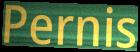
Pernis